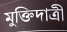
মুক্তিদাত্রী